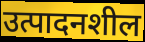
उत्पादनशील